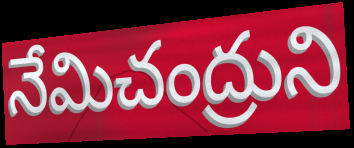
నేమిచంద్రుని